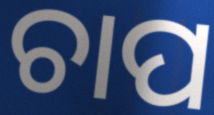
ଚାପ